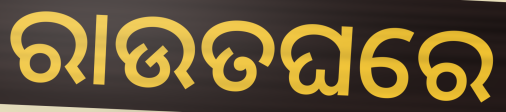
ରାଉତଘରେ